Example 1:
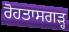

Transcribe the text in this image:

ਰੋਹਤਾਸਗੜ੍ਹ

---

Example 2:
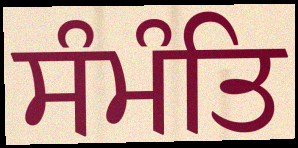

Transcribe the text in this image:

ਸੰਮੰਤਿ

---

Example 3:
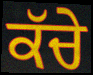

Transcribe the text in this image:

ਕੱਚੇ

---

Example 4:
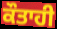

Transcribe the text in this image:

ਕੌਤਾਹੀ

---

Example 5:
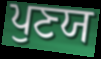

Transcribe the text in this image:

ਪੁਣਯ